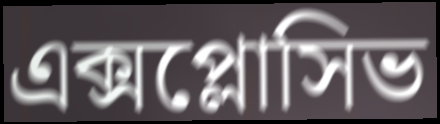
এক্সপ্লোসিভ